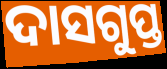
ଦାସଗୁପ୍ତ